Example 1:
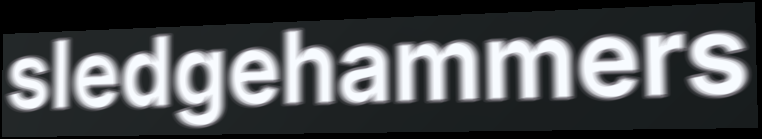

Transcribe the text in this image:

sledgehammers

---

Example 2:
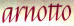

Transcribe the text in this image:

arnotto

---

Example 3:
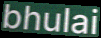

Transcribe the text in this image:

bhulai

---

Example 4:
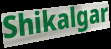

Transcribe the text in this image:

Shikalgar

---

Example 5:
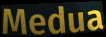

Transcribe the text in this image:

Medua